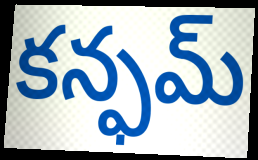
కన్ఫమ్